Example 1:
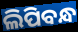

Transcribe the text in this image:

ଲିପିବନ୍ଧ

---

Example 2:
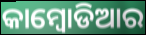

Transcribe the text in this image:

କାମ୍ବୋଡିଆର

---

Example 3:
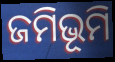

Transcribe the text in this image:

ଜମିଭୂମି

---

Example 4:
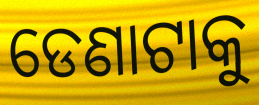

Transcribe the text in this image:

ଡେଣାଟାକୁ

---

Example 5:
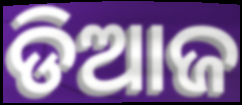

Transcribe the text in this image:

ଡିଆଜ